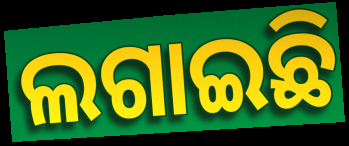
ଲଗାଇଛି